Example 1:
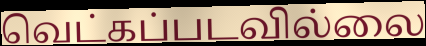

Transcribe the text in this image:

வெட்கப்படவில்லை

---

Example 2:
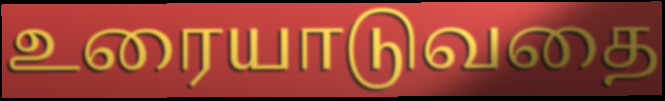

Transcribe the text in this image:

உரையாடுவதை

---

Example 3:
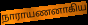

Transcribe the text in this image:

நாராயணனாகிய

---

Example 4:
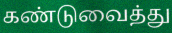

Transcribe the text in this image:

கண்டுவைத்து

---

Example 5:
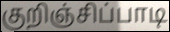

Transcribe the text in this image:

குறிஞ்சிப்பாடி